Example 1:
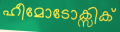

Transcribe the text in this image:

ഹീമോടോക്സിക്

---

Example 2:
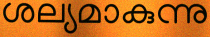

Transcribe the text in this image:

ശല്യമാകുന്നു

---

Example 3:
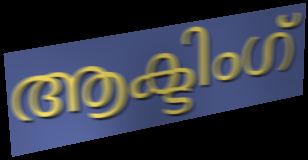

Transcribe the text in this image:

ആക്ടിംഗ്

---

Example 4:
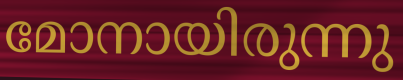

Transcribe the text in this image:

മോനായിരുന്നു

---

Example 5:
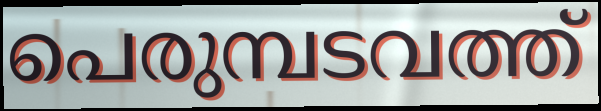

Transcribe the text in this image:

പെരുമ്പടവത്ത്